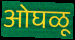
ओघळू